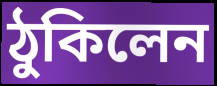
ঠুকিলেন